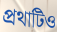
প্রথাটিও